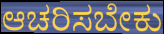
ಆಚರಿಸಬೇಕು